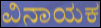
ವಿನಾಯಕ